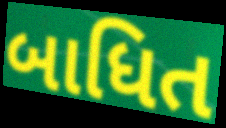
બાધિત